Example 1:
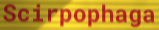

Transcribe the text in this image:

Scirpophaga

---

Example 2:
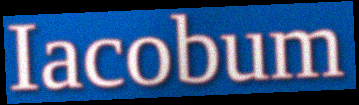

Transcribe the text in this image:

Iacobum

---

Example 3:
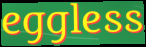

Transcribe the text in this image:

eggless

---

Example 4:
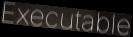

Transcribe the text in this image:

Executable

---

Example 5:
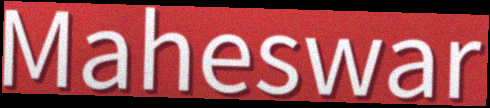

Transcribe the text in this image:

Maheswar